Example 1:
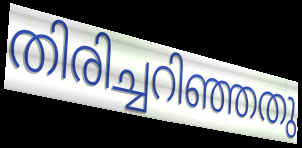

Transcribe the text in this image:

തിരിച്ചറിഞ്ഞതു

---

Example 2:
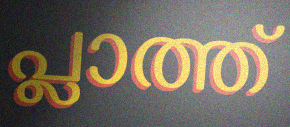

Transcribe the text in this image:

പ്ലാത്ത്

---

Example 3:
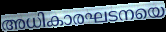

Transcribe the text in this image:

അധികാരഘടനയെ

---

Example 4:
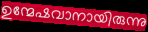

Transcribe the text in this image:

ഉന്മേഷവാനായിരുന്നു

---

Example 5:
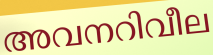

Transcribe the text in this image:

അവനറിവീല